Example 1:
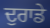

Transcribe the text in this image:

ਦੁਰਾਡੇ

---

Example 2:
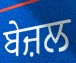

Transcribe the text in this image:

ਬੇਜ਼ਲ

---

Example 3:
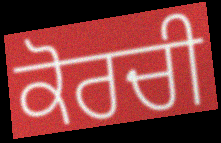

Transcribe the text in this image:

ਕੋਰਚੀ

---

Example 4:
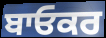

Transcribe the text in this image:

ਬਾਓਕਰ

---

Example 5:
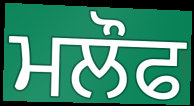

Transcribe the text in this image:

ਮਲੌਫ